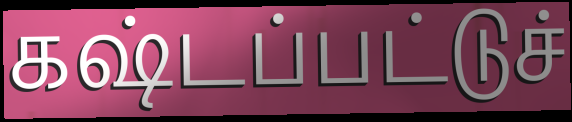
கஷ்டப்பட்டுச்